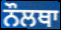
ਨੌਲਥਾ